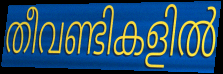
തീവണ്ടികളിൽ